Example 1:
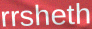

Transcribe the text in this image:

rrsheth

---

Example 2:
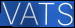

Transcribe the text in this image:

VATS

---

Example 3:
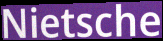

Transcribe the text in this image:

Nietsche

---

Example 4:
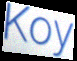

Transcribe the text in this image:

Koy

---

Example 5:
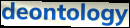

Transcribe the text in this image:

deontology